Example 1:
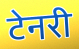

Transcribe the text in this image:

टेनरी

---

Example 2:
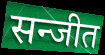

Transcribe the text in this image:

सन्जीत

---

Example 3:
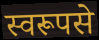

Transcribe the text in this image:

स्वरूपसे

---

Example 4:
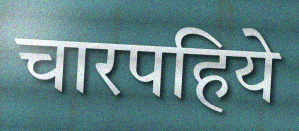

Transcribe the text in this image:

चारपहिये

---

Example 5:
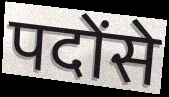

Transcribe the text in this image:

पदोंसे